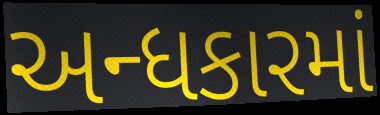
અન્ધકારમાં